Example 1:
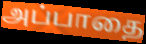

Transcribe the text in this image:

அப்பாதை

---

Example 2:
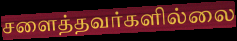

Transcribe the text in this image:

சளைத்தவர்களில்லை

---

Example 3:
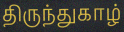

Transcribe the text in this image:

திருந்துகாழ்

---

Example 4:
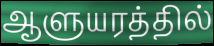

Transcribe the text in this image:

ஆளுயரத்தில்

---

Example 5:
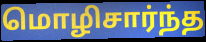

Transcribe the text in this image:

மொழிசார்ந்த